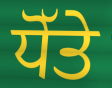
ਧੋੱਤੇ